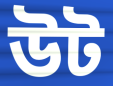
উট